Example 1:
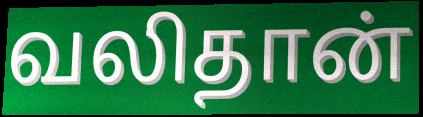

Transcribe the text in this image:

வலிதான்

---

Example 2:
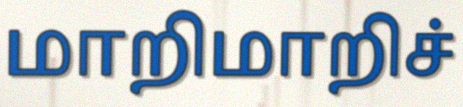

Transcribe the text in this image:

மாறிமாறிச்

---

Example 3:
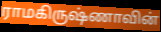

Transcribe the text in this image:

ராமகிருஷ்ணாவின்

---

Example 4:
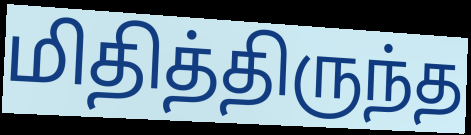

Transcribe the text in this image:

மிதித்திருந்த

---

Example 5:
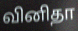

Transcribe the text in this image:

வினிதா